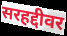
सरहद्दीवर